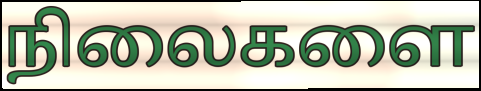
நிலைகளை